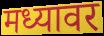
मध्यावर